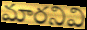
మారనివి